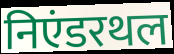
निएंडरथल